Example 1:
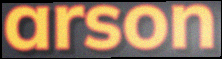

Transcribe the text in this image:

arson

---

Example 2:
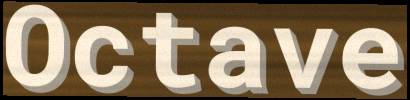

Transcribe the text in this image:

Octave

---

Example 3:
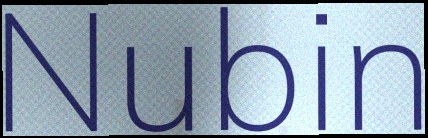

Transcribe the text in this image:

Nubin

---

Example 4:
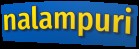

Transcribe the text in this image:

nalampuri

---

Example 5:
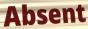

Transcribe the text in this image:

Absent